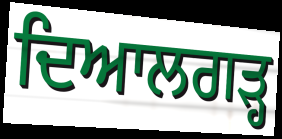
ਦਿਆਲਗੜ੍ਹ